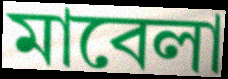
মাবেলা